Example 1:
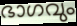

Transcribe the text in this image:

ഭാഗവും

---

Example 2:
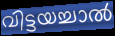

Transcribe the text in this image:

വിട്ടയച്ചാൽ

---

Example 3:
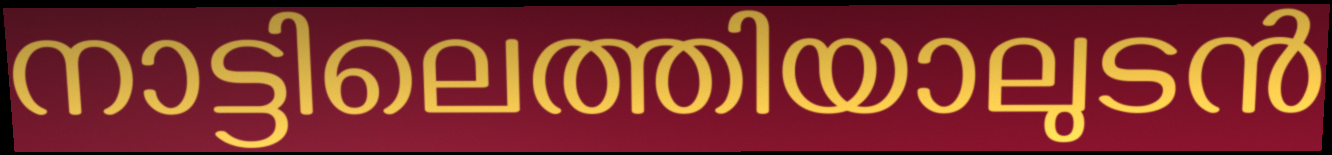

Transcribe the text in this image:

നാട്ടിലെത്തിയാലുടൻ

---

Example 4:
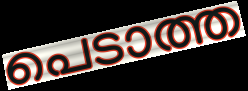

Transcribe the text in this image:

പെടാത്ത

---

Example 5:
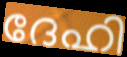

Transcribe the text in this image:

ദേഹി